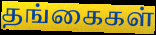
தங்கைகள்